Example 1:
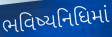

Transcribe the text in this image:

ભવિષ્યનિધિમાં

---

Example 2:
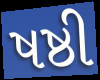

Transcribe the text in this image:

ષષ્ઠી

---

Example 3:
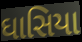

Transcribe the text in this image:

ઘાસિયા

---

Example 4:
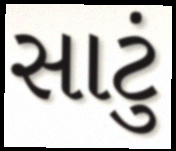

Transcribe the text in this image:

સાટું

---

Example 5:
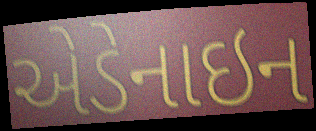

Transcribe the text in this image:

એડેનાઇન